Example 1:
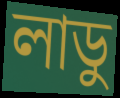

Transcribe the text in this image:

লাডু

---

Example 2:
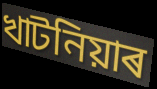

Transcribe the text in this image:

খাটনিয়াৰ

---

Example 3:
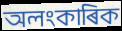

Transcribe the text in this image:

অলংকাৰিক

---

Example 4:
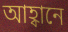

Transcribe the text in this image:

আহ্বানে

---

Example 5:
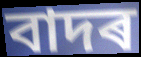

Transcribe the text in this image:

বাদৰ